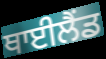
ਥਾਈਲੈਂਡ